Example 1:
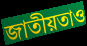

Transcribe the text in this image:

জাতীয়তাও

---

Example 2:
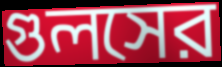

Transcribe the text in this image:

গুলসের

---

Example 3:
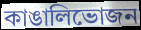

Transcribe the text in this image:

কাঙালিভোজন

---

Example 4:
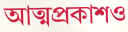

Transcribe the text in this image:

আত্মপ্রকাশও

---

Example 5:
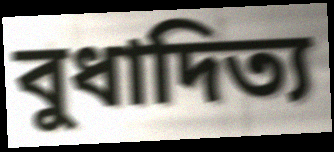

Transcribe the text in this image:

বুধাদিত্য